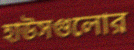
হাউসগুলোর